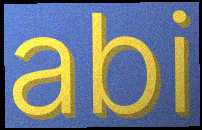
abi